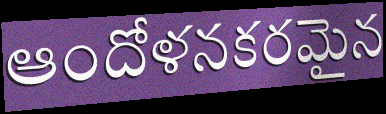
ఆందోళనకరమైన